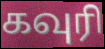
கவுரி